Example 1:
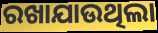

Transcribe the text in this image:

ରଖାଯାଉଥିଲା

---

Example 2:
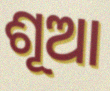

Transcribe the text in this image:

ଶୂଆ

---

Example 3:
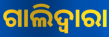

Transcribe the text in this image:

ଗାଲିଦ୍ଵାରା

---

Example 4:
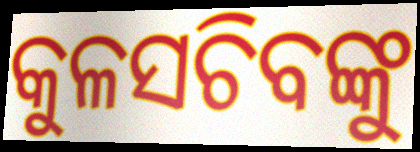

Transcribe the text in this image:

କୁଳସଚିବଙ୍କୁ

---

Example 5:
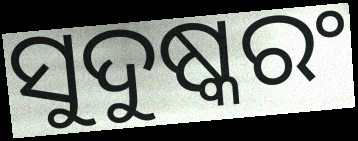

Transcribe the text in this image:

ସୁଦୁଷ୍କରଂ